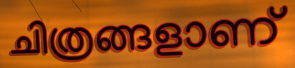
ചിത്രങ്ങളാണ്